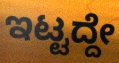
ಇಟ್ಟದ್ದೇ